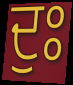
ਦੁਃ